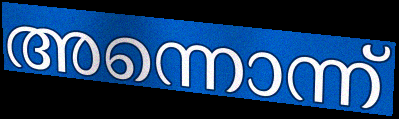
അന്നൊന്ന്